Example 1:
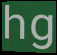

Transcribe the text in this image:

hg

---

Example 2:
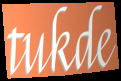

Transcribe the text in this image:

tukde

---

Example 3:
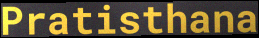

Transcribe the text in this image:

Pratisthana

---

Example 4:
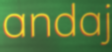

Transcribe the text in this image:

andaj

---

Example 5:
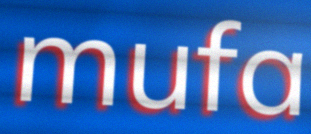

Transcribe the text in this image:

mufa